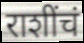
राशींचं